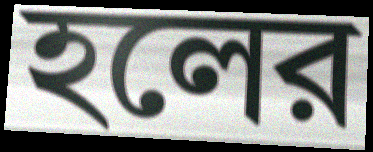
হলের